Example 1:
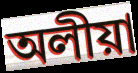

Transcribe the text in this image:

অলীয়া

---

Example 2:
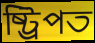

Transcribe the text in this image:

ষ্ট্ৰিপত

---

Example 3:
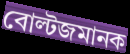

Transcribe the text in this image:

বোল্টজমানক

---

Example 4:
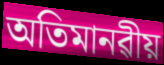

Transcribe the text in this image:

অতিমানৱীয়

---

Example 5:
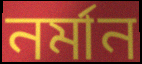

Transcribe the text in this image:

নৰ্মান